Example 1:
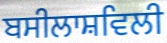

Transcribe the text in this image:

ਬਸੀਲਾਸ਼ਵਿਲੀ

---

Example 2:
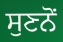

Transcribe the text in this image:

ਸੁਣਨੋਂ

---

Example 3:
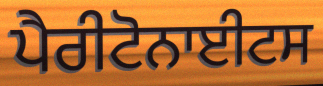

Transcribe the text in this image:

ਪੈਰੀਟੋਨਾਈਟਸ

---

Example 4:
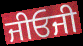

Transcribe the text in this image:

ਜੀਓਜੀ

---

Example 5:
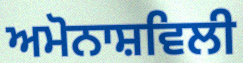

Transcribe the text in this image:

ਅਮੋਨਾਸ਼ਵਿਲੀ